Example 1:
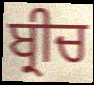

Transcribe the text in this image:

ਬ੍ਰੀਚ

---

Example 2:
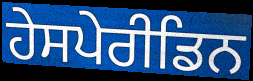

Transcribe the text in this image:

ਹੇਸਪੇਰੀਡਿਨ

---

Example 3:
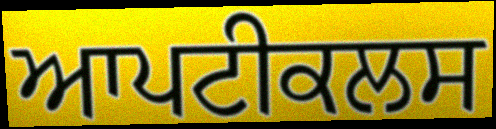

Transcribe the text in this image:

ਆਪਟੀਕਲਸ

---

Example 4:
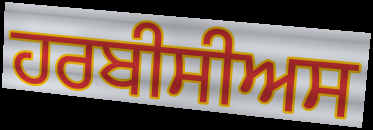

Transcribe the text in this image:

ਹਰਬੀਸੀਅਸ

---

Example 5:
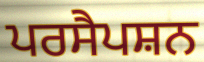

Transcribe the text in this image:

ਪਰਸੈਪਸ਼ਨ